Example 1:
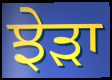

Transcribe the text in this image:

ਝੇੜਾ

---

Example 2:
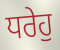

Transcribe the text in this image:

ਧਰੇਹੁ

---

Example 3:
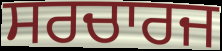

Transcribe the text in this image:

ਸਰਚਾਰਜ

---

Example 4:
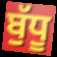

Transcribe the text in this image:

ਬੁੱਧੂ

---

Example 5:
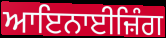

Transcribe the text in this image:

ਆਇਨਾਈਜ਼ਿੰਗ